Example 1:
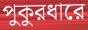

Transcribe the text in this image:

পুকুরধারে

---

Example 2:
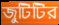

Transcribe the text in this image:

জুটিটির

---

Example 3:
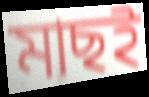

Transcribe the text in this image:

মাছই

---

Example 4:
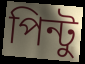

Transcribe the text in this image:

পিন্টু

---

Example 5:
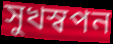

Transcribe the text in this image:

সুখস্বপন